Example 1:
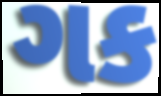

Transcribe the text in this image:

ગક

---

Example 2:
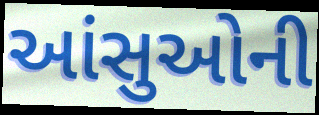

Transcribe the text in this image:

આંસુઓની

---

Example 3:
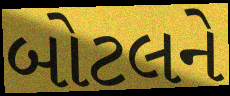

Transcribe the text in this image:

બોટલને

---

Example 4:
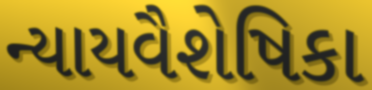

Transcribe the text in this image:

ન્યાયવૈશેષિકા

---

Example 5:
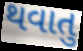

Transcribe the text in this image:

થવાતુ